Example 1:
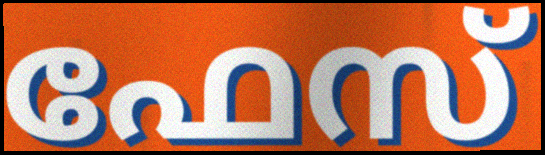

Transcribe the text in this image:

ഫേസ്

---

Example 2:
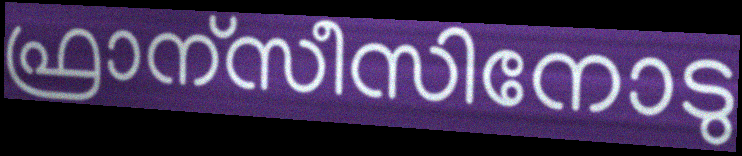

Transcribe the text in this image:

ഫ്രാന്സീസിനോടു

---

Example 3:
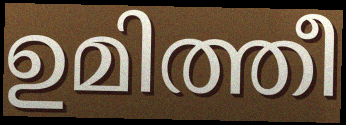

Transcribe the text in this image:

ഉമിത്തീ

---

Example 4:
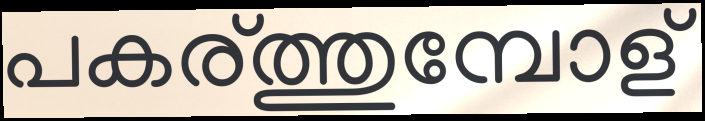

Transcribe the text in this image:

പകര്ത്തുമ്പോള്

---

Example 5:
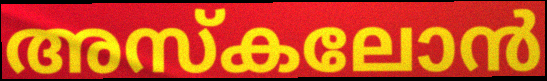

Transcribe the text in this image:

അസ്കലോൻ